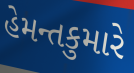
હેમન્તકુમારે